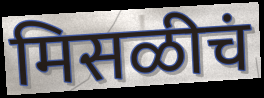
मिसळीचं